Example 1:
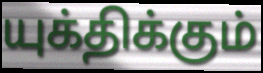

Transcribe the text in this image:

யுக்திக்கும்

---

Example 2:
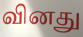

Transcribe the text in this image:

வினது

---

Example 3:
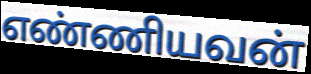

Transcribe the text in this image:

எண்ணியவன்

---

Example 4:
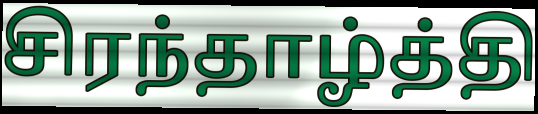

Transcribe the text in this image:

சிரந்தாழ்த்தி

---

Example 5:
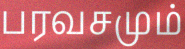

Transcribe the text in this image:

பரவசமும்